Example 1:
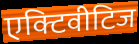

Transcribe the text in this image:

एक्टिवीटिज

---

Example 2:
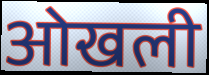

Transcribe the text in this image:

ओखली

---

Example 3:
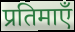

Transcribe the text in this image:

प्रतिमाएँ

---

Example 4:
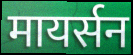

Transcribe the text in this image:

मायर्सन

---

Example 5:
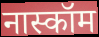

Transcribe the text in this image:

नास्कॉम